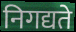
निगद्यते